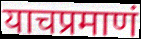
याचप्रमाणं